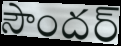
సౌందర్